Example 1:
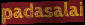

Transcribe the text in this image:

padasalai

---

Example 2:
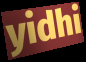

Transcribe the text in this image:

yidhi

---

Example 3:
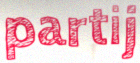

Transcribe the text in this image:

partij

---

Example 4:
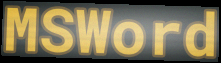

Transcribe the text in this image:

MSWord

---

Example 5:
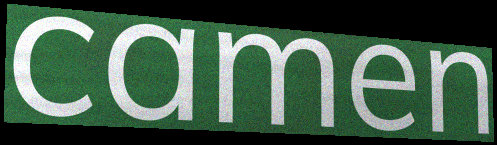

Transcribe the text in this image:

camen